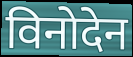
विनोदेन